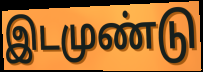
இடமுண்டு